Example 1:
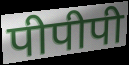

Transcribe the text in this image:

पीपीपी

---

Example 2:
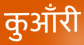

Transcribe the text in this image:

कुआँरी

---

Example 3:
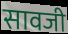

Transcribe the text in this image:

सावजी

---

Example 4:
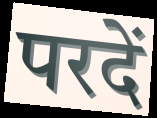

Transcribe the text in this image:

परदें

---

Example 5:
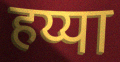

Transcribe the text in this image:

हय्या